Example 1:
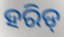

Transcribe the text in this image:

ହରିଡ୍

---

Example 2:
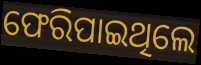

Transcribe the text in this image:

ଫେରିପାଇଥିଲେ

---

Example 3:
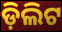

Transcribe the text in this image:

ଡ଼ିଲିଟ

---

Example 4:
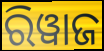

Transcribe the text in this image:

ରିୱାଜ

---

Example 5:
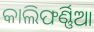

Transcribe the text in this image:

କାଲିଫର୍ଣ୍ଣିଆ